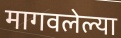
मागवलेल्या